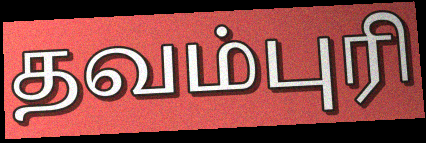
தவம்புரி